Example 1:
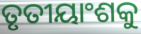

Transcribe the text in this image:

ତୃତୀୟାଂଶକୁ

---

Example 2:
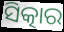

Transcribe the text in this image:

ସିତ୍କାର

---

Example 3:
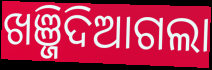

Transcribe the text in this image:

ଖଞ୍ଜିଦିଆଗଲା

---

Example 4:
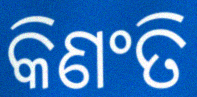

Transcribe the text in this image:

କିଣଂତି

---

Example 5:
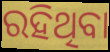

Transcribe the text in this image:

ରହିଥିବା